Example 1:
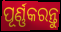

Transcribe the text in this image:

ପୂର୍ଣ୍ଣକରନ୍ତୁ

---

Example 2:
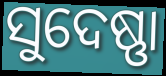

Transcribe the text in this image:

ସୁଦେଷ୍ଣା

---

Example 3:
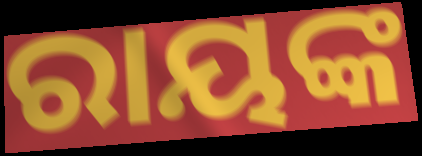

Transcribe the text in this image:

ରାୟଙ୍କ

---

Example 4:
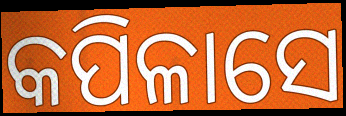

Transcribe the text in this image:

କପିଳାସେ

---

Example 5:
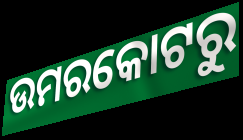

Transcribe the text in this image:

ଉମରକୋଟରୁ